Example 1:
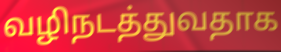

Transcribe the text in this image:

வழிநடத்துவதாக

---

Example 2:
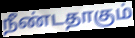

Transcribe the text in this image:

நீண்டதாகும்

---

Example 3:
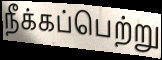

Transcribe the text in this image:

நீக்கப்பெற்று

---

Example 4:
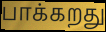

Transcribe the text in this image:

பாக்கறது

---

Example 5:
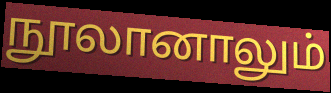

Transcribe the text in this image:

நூலானாலும்